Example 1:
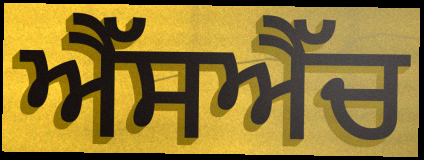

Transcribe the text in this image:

ਐੱਸਐੱਚ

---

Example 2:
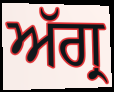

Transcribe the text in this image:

ਅੱਗ੍ਰ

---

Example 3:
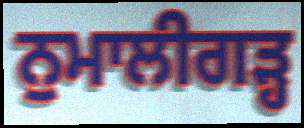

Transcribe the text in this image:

ਨੁਮਾਲੀਗੜ੍ਹ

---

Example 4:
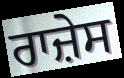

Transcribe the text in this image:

ਰਾਜ਼ੇਸ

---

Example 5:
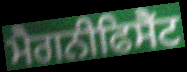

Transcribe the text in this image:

ਮੈਗਨੀਫਿਸੈਂਟ